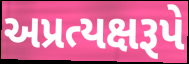
અપ્રત્યક્ષરૂપે